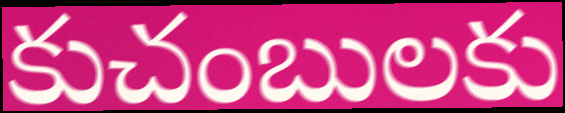
కుచంబులకు